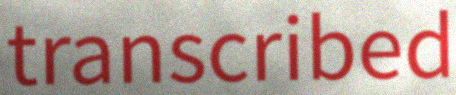
transcribed